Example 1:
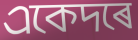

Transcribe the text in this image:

একেদৰে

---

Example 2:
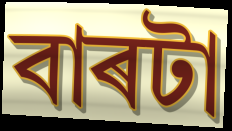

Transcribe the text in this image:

বাৰটা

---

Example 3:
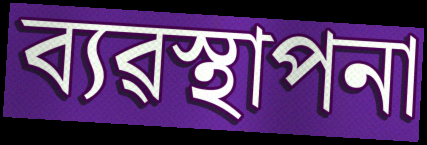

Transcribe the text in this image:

ব্যৱস্থাপনা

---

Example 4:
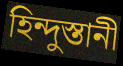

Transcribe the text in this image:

হিন্দুস্তানী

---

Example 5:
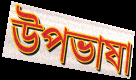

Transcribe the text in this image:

উপভাষা